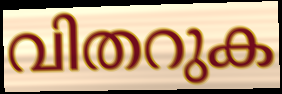
വിതറുക